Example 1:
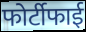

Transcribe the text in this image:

फोर्टीफाई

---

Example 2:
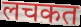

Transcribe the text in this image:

लचकत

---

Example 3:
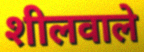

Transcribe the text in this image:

शीलवाले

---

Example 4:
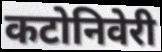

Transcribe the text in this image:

कटोनिवेरी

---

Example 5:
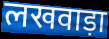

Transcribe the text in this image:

लखवाड़ा